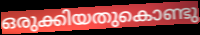
ഒരുക്കിയതുകൊണ്ടു